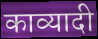
काव्यादी